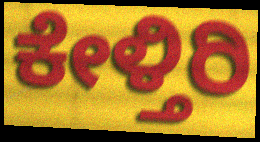
ಕೇಳ್ತಿರಿ